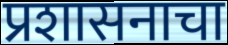
प्रशासनाचा